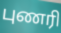
புணரி